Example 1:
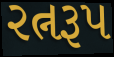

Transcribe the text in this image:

રત્નરૂપ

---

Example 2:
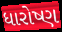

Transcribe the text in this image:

ધારોષ્ણ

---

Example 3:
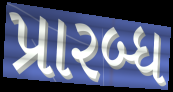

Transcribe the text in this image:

પ્રારબ્ધ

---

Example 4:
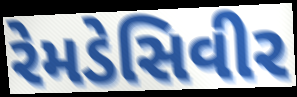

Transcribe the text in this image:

રેમડેસિવીર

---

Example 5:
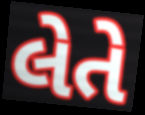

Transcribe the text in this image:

લેતે